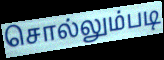
சொல்லும்படி